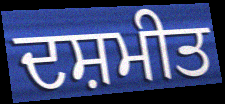
ਦਸ਼ਮੀਤ